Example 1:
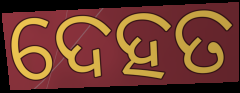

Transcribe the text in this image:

ଦେହତ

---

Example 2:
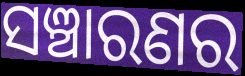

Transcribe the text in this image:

ସଞ୍ଚାରଣର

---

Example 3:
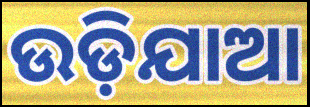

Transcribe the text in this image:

ଉଡ଼ିଯାଆ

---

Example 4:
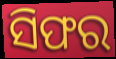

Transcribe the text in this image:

ସିଫର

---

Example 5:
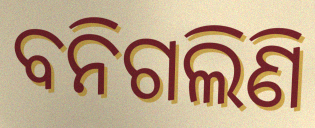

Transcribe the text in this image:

ବନିଗଲିଣି